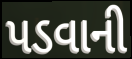
પડવાની